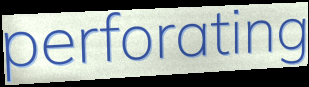
perforating